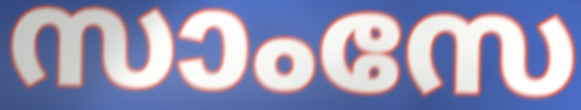
സാംസേ